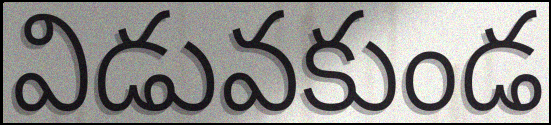
విడువకుండ